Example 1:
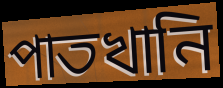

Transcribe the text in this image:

পাতখানি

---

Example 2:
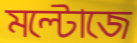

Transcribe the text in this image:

মল্টোজে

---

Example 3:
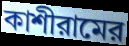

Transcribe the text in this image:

কাশীরামের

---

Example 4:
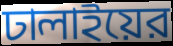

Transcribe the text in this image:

ঢালাইয়ের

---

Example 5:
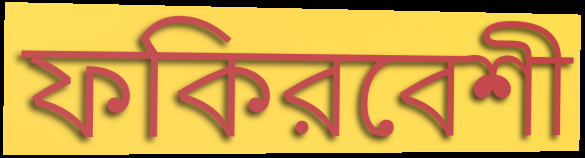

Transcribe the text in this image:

ফকিরবেশী